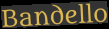
Bandello